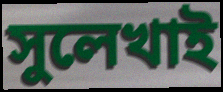
সুলেখাই